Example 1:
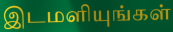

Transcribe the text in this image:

இடமளியுங்கள்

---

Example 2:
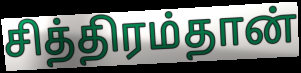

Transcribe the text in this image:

சித்திரம்தான்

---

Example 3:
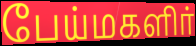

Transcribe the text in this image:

பேய்மகளிர்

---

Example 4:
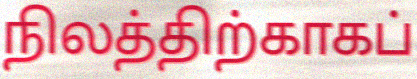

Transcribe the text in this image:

நிலத்திற்காகப்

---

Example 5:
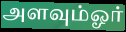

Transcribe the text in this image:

அளவும்ஓர்